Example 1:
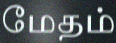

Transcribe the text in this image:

மேதம்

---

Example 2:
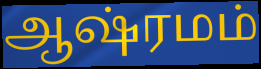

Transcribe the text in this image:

ஆஷ்ரமம்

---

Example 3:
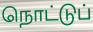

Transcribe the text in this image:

நொட்டுப்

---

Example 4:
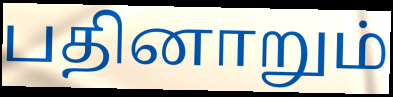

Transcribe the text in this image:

பதினாறும்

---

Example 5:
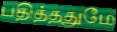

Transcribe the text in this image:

பதித்ததுமே